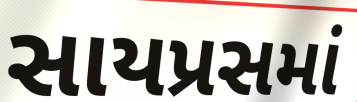
સાયપ્રસમાં